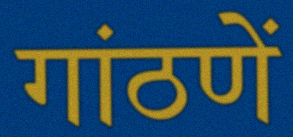
गांठणें